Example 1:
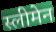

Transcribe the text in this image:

स्लीमेन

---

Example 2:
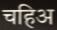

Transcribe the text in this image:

चहिअ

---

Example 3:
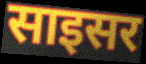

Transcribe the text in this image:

साइसर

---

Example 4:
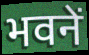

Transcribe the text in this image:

भवनें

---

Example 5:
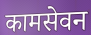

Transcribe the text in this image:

कामसेवन